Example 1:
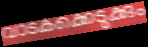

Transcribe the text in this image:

വാടകക്കെടുക്കും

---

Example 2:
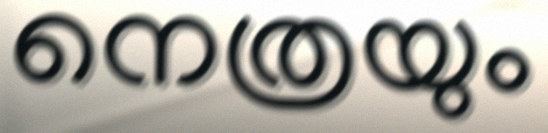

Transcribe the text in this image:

നെത്രയും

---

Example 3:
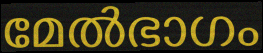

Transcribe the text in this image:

മേൽഭാഗം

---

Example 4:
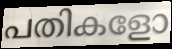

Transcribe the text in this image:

പതികളോ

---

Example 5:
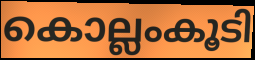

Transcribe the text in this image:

കൊല്ലംകൂടി